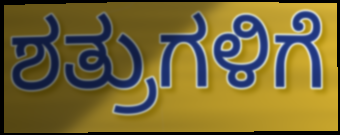
ಶತ್ರುಗಳಿಗೆ